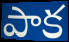
పాక